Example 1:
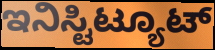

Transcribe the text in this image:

ಇನಿಸ್ಟಿಟ್ಯೂಟ್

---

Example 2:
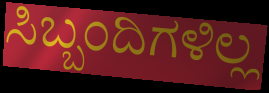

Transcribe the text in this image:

ಸಿಬ್ಬಂದಿಗಳಿಲ್ಲ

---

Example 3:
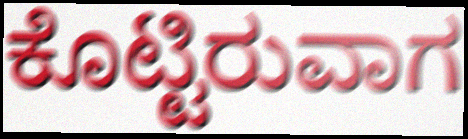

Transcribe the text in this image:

ಕೊಟ್ಟಿರುವಾಗ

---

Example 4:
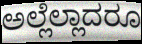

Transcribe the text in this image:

ಅಲ್ಲೆಲ್ಲಾದರೂ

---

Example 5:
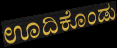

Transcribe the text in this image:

ಊದಿಕೊಂಡು